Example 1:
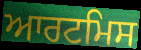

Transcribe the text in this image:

ਆਰਟਮਿਸ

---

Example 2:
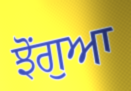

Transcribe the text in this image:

ਝੋਂਗੁਆ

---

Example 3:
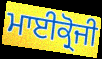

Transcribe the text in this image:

ਮਾਈਕ੍ਰੋਜੀ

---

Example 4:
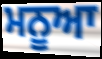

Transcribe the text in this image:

ਮਨੂਆ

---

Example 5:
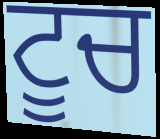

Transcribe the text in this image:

ਟੂਚ